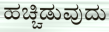
ಹಚ್ಚಿಡುವುದು